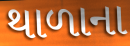
થાળાના